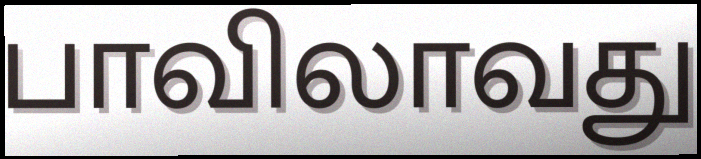
பாவிலாவது